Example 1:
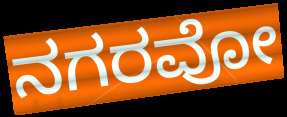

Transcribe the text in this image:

ನಗರವೋ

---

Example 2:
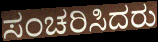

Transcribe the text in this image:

ಸಂಚರಿಸಿದರು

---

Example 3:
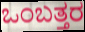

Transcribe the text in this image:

ಒಂಬತ್ತರ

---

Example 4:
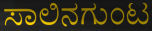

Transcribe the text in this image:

ಸಾಲಿನಗುಂಟ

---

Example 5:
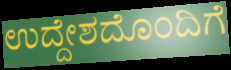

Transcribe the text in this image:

ಉದ್ದೇಶದೊಂದಿಗೆ